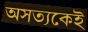
অসত্যকেই